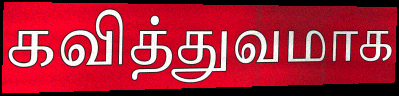
கவித்துவமாக